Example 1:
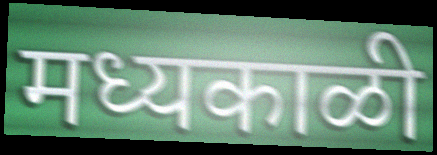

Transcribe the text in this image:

मध्यकाळी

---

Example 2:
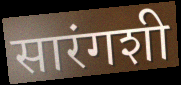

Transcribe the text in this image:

सारंगशी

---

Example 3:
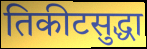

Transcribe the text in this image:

तिकीटसुद्धा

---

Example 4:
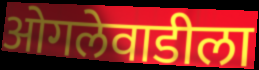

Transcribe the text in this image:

ओगलेवाडीला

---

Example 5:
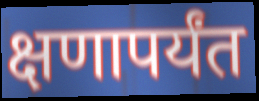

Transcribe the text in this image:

क्षणापर्यंत